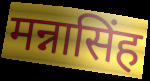
मन्नासिंह